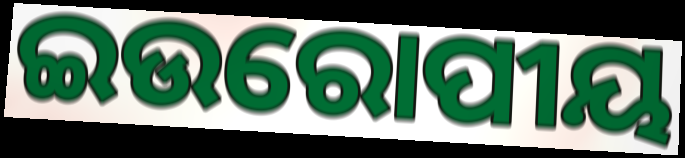
ଇଉରୋପୀୟ